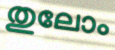
തുലോം